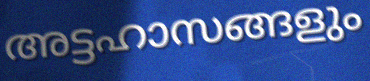
അട്ടഹാസങ്ങളും